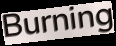
Burning